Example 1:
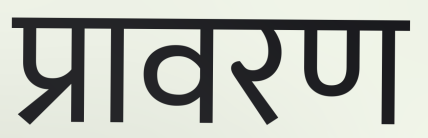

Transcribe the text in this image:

प्रावरण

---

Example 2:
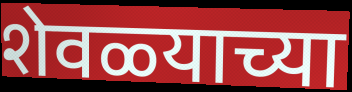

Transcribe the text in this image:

शेवळ्याच्या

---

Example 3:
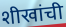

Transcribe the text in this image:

शीखांची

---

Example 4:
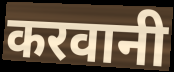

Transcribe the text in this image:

करवानी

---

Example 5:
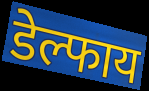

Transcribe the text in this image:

डेल्फाय